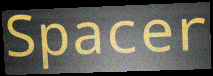
Spacer